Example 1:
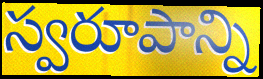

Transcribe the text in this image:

స్వరూపాన్ని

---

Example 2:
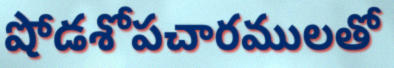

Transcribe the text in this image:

షోడశోపచారములతో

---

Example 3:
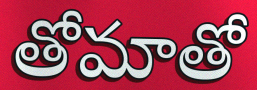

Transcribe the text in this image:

తోమాతో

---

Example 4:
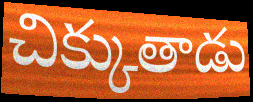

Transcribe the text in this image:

చిక్కుతాడు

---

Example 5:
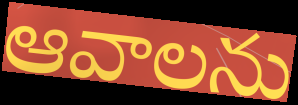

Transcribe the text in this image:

ఆవాలను